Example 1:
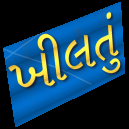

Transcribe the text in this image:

ખીલતું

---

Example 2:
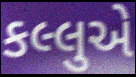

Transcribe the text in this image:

કલ્લુએ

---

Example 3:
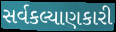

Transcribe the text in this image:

સર્વકલ્યાણકારી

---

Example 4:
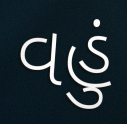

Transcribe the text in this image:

વહું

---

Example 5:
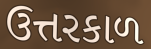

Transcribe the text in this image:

ઉત્તરકાળ